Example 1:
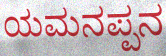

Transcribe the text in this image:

ಯಮನಪ್ಪನ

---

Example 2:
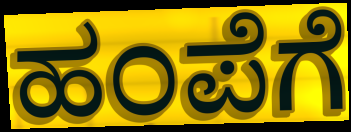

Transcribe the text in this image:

ಹಂಪೆಗೆ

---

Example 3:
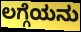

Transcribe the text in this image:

ಲಗ್ಗೆಯನು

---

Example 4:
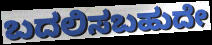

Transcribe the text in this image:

ಬದಲಿಸಬಹುದೇ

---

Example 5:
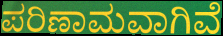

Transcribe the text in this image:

ಪರಿಣಾಮವಾಗಿವೆ